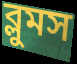
ব্লুমস